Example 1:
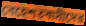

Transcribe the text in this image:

বেহেশতবাসীদের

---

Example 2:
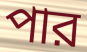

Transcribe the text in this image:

পার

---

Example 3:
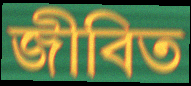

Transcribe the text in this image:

জীবিত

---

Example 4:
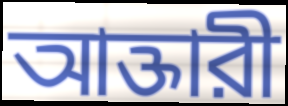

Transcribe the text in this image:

আক্তারী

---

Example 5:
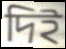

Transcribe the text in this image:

দিই